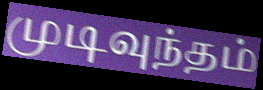
முடிவுந்தம்